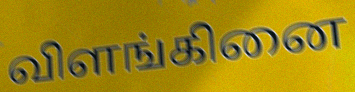
விளங்கினை